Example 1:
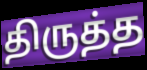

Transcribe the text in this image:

திருத்த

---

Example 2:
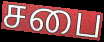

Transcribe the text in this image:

சபை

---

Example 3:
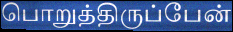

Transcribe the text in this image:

பொறுத்திருப்பேன்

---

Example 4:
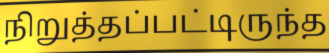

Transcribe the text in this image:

நிறுத்தப்பட்டிருந்த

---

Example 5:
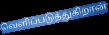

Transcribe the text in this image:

வெளிப்படுத்துகிறான்